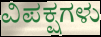
ವಿಪಕ್ಷಗಳು